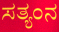
ಸತ್ಯಂನ